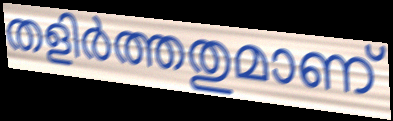
തളിർത്തതുമാണ്